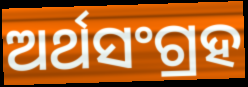
ଅର୍ଥସଂଗ୍ରହ